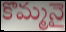
కొమ్మనై